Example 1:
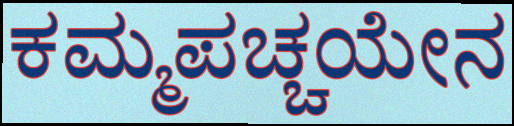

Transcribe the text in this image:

ಕಮ್ಮಪಚ್ಚಯೇನ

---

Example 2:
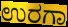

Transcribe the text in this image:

ಉರಗಾ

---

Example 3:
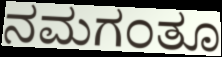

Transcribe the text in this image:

ನಮಗಂತೂ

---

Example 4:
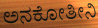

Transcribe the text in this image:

ಅನಕೋತೀನಿ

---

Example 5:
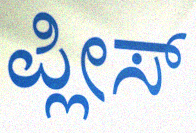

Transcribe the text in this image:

ಪ್ಲೀಸ್